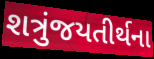
શત્રુંજયતીર્થના